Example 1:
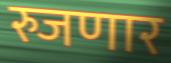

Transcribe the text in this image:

रुजणार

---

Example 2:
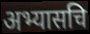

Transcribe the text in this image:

अभ्यासचि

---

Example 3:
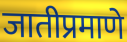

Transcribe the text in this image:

जातीप्रमाणे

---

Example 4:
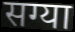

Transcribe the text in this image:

सग्या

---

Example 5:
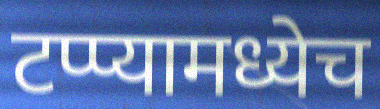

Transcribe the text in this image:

टप्प्यामध्येच